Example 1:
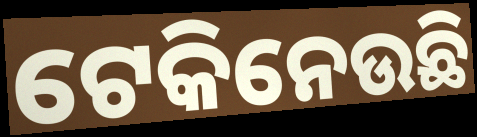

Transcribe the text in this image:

ଟେକିନେଉଛି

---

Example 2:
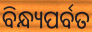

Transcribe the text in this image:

ବିନ୍ଧ୍ୟପର୍ବତ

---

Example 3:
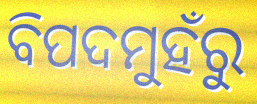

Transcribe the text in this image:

ବିପଦମୁହଁରୁ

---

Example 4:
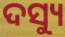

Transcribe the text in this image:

ଦସ୍ୟୁ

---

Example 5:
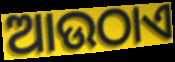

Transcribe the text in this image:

ଆଉଠାଏ